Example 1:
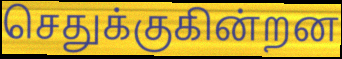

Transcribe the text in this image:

செதுக்குகின்றன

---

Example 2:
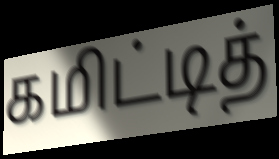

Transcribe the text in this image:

கமிட்டித்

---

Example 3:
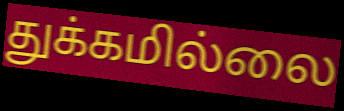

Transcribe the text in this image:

துக்கமில்லை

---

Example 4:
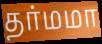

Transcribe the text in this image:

தர்மமா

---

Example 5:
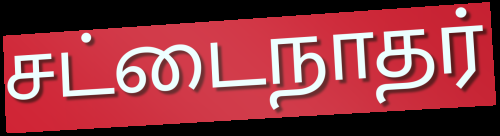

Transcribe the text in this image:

சட்டைநாதர்